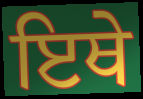
ਇਥੇ